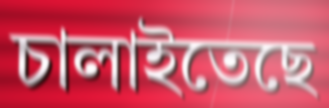
চালাইতেছে